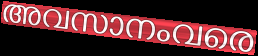
അവസാനംവരെ